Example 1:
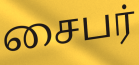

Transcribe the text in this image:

சைபர்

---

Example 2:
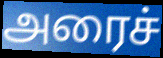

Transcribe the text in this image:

அரைச்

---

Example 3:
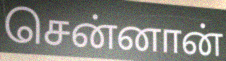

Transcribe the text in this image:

சென்னான்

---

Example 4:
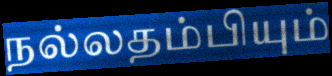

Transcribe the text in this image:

நல்லதம்பியும்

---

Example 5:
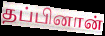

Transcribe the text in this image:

தப்பினான்